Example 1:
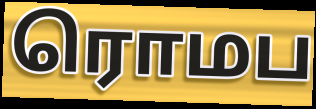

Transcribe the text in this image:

ரொமப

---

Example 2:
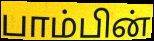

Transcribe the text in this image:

பாம்பின்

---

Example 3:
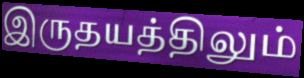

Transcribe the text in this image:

இருதயத்திலும்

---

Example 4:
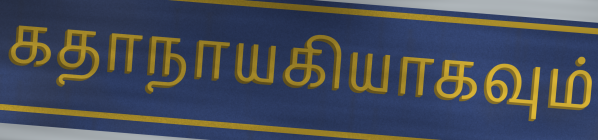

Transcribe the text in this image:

கதாநாயகியாகவும்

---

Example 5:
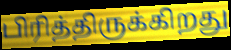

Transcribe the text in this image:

பிரித்திருக்கிறது